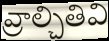
వ్రాల్చితివి